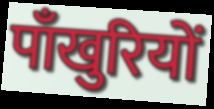
पाँखुरियों